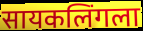
सायकलिंगला